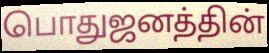
பொதுஜனத்தின்